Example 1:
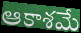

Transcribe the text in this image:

ఆకాశమే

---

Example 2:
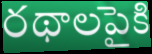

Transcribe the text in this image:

రథాలపైకి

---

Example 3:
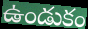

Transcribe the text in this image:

ఉండుకం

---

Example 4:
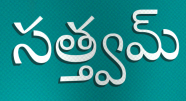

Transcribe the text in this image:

సత్త్వమ్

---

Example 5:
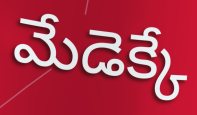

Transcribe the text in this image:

మేడెక్కే